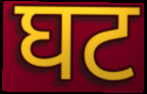
घट